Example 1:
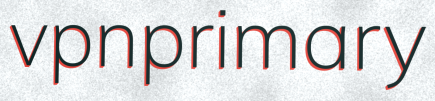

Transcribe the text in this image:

vpnprimary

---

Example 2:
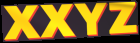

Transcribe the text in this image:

XXYZ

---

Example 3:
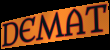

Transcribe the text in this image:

DEMAT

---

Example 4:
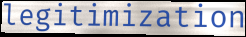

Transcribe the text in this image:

legitimization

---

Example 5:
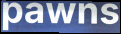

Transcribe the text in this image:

pawns